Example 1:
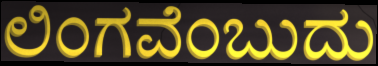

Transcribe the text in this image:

ಲಿಂಗವೆಂಬುದು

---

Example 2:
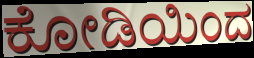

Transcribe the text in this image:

ಕೋಡಿಯಿಂದ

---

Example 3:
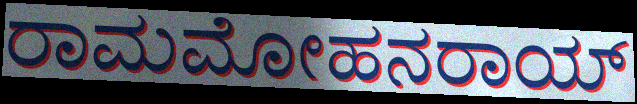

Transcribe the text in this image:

ರಾಮಮೋಹನರಾಯ್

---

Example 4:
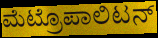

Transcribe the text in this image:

ಮೆಟ್ರೊಪಾಲಿಟನ್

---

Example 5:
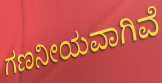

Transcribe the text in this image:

ಗಣನೀಯವಾಗಿವೆ